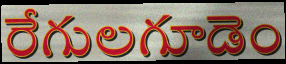
రేగులగూడెం